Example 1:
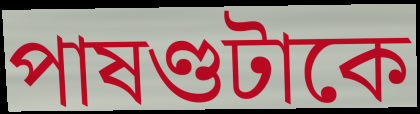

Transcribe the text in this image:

পাষণ্ডটাকে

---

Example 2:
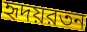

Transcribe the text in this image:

হৃদয়রতন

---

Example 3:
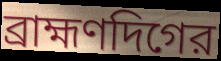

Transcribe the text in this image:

ব্রাহ্মণদিগের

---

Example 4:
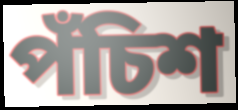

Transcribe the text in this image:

পঁচিশ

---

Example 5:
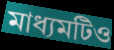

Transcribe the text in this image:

মাধ্যমটিও